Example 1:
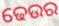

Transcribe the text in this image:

ଢେଉର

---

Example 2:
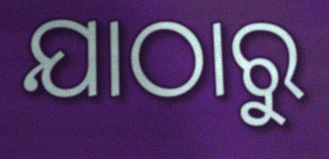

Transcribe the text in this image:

ଯାଠାରୁ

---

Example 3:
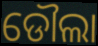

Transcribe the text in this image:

ଡୌଲା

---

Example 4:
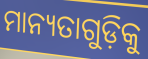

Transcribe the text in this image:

ମାନ୍ୟତାଗୁଡ଼ିକୁ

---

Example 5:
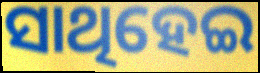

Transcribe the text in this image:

ସାଥିହେଇ